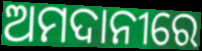
ଅମଦାନୀରେ